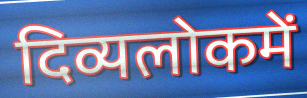
दिव्यलोकमें